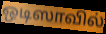
ஒடிஸாவில்